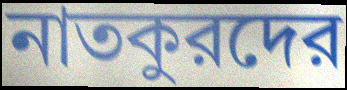
নাতকুরদের